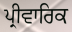
ਪ੍ਰੀਵਾਰਿਕ